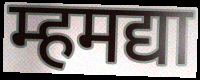
म्हमद्या